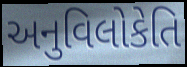
અનુવિલોકેતિ